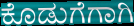
ಕೊಡುಗೆಗಾಗಿ